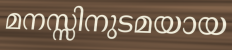
മനസ്സിനുടമയായ